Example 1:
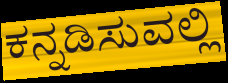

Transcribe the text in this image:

ಕನ್ನಡಿಸುವಲ್ಲಿ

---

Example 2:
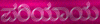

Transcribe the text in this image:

ಪರಿಯಾಯ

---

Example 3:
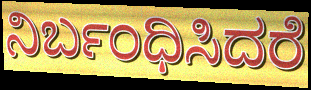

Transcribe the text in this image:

ನಿರ್ಬಂಧಿಸಿದರೆ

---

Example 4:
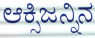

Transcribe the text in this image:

ಆಕ್ಸಿಜನ್ನಿನ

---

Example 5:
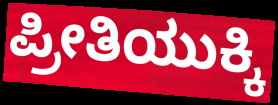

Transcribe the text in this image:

ಪ್ರೀತಿಯುಕ್ಕಿ